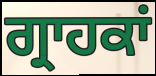
ਗ੍ਰਾਹਕਾਂ